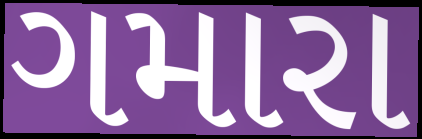
ગમારા